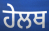
ਹੇਲਥ